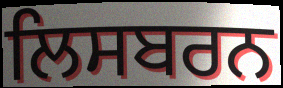
ਲਿਸਬਰਨ